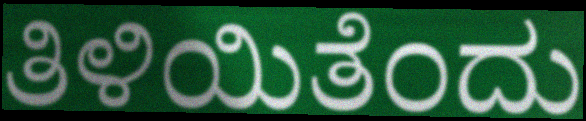
ತಿಳಿಯಿತೆಂದು